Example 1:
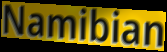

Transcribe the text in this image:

Namibian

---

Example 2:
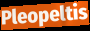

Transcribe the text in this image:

Pleopeltis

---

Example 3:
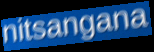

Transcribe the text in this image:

nitsangana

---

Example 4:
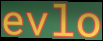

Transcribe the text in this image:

evlo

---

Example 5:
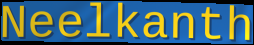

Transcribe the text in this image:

Neelkanth